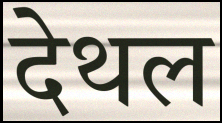
देथल